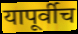
यापूर्वीच